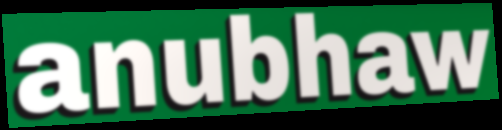
anubhaw